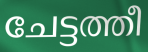
ചേട്ടത്തീ